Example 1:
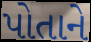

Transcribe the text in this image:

પોતાને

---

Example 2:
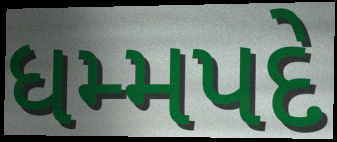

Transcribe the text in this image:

ધમ્મપદે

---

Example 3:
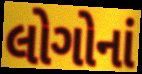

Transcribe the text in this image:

લોગોનાં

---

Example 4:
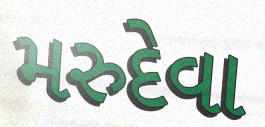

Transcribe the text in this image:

મરુદેવા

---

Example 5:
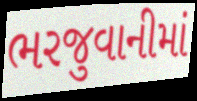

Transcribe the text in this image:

ભરજુવાનીમાં